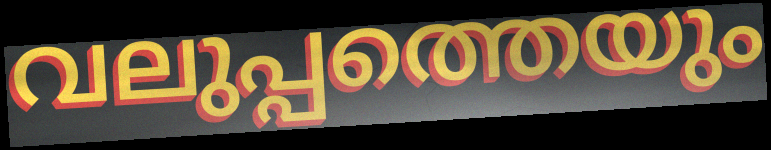
വലുപ്പത്തെയും